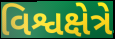
વિશ્વક્ષેત્રે